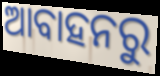
ଆବାହନରୁ